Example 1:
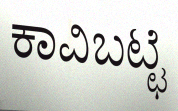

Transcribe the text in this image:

ಕಾವಿಬಟ್ಟೆ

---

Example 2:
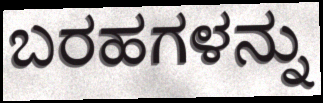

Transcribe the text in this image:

ಬರಹಗಳನ್ನು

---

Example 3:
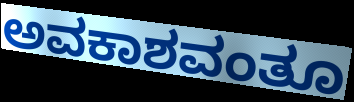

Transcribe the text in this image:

ಅವಕಾಶವಂತೂ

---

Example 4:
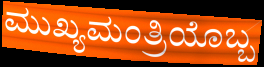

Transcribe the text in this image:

ಮುಖ್ಯಮಂತ್ರಿಯೊಬ್ಬ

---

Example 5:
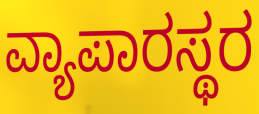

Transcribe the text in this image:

ವ್ಯಾಪಾರಸ್ಥರ